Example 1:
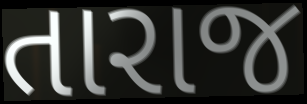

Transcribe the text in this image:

તારાજ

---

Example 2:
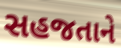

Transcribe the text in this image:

સહજતાને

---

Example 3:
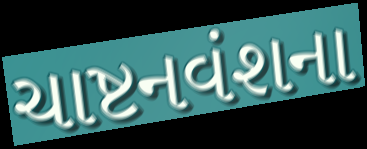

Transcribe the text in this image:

ચાષ્ટનવંશના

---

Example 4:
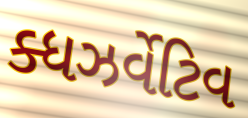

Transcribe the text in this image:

ક્ધઝર્વેટિવ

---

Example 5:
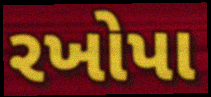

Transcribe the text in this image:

રખોપા